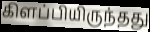
கிளப்பியிருந்தது